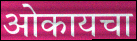
ओकायचा